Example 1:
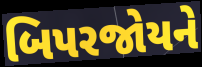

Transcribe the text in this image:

બિપરજોયને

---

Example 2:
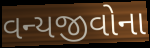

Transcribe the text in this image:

વન્યજીવોના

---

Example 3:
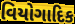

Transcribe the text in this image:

વિયોગાદિક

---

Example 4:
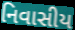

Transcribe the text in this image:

નિવાસીય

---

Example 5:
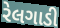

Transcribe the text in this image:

રેલગાડી